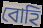
বোহি